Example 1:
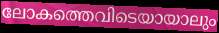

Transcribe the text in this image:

ലോകത്തെവിടെയായാലും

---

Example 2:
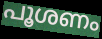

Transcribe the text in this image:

പൂശണം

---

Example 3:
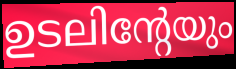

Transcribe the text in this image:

ഉടലിന്റേയും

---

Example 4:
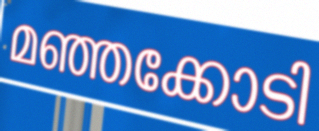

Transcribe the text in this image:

മഞ്ഞക്കോടി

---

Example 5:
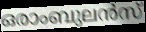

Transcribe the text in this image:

ഒരാംബുലൻസ്